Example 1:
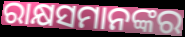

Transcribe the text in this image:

ରାକ୍ଷସମାନଙ୍କର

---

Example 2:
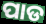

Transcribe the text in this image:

ପାଡ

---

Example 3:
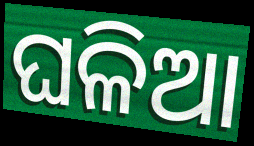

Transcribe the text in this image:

ଘଳିଆ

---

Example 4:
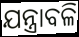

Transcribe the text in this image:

ଯନ୍ତ୍ରାବଳି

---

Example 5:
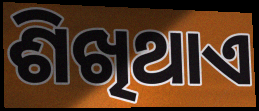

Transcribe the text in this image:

ଶିଖିଥାଏ